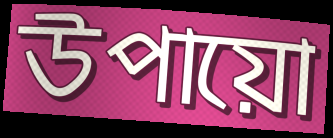
উপায়ো